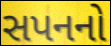
સપનનો